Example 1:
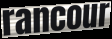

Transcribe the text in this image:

rancour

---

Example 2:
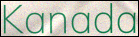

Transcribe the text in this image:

Kanada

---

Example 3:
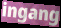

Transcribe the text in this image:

ingang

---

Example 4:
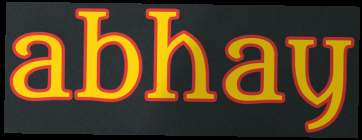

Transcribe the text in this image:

abhay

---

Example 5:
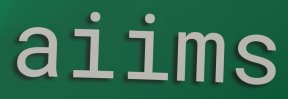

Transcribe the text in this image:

aiims